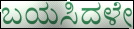
ಬಯಸಿದಳೇ